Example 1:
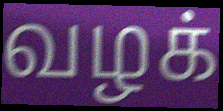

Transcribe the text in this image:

வழக்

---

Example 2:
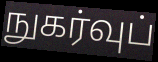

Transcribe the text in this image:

நுகர்வுப்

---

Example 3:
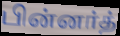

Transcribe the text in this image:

பின்னர்த்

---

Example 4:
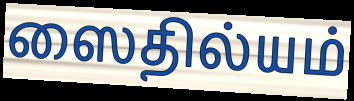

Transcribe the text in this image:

ஸைதில்யம்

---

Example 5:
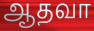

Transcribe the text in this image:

ஆதவா